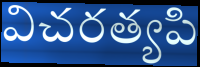
విచరత్యపి